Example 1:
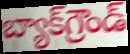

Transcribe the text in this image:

బ్యాక్‌గ్రౌండ్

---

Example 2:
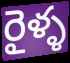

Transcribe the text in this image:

రైళ్ళ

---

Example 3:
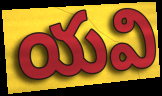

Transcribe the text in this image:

యవి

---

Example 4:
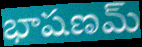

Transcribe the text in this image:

భాషణమ్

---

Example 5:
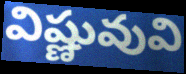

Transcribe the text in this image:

విష్ణువువి